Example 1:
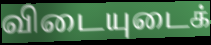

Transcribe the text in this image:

விடையுடைக்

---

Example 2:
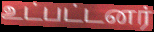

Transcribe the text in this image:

உட்பட்டனர்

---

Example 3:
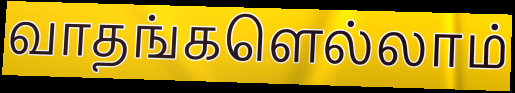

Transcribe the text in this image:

வாதங்களெல்லாம்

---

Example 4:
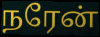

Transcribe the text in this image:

நரேன்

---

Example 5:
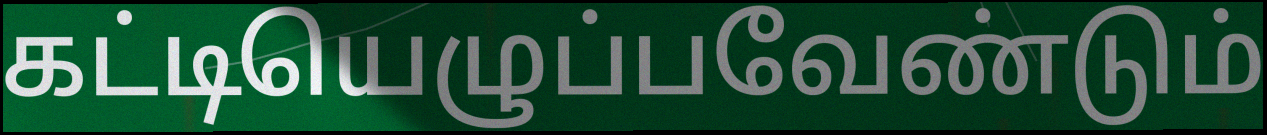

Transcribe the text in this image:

கட்டியெழுப்பவேண்டும்